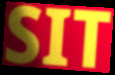
SIT